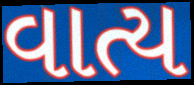
વાત્ય